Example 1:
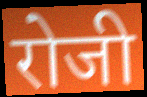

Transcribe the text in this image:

रोजी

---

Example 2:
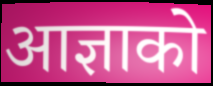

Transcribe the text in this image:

आज्ञाको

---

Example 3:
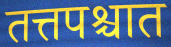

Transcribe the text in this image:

तत्तपश्चात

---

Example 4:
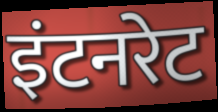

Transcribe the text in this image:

इंटनरेट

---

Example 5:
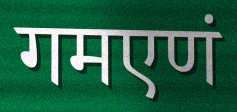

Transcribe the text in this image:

गमएणं